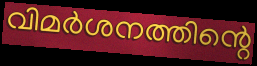
വിമർശനത്തിന്റെ